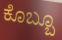
ಕೊಬ್ಬೂ